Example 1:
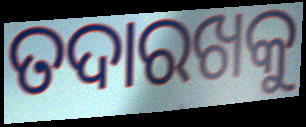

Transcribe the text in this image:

ତଦାରଖକୁ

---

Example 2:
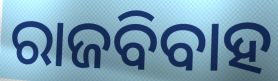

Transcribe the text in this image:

ରାଜବିବାହ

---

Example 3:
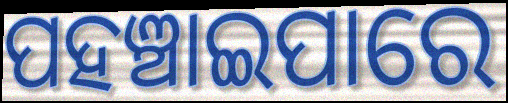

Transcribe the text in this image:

ପହଞ୍ଚାଇପାରେ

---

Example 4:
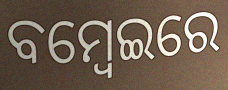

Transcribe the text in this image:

ବମ୍ବେଇରେ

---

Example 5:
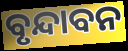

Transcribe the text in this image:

ବୃନ୍ଦାବନ